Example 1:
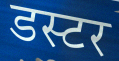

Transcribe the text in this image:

डस्टर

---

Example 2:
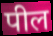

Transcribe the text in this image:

पील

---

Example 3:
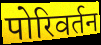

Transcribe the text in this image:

पोरिवर्तन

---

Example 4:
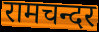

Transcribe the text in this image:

रामचन्दर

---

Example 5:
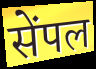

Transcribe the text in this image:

सेंपल